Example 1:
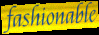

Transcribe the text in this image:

fashionable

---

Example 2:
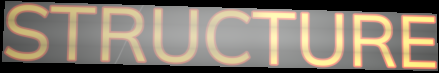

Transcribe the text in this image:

STRUCTURE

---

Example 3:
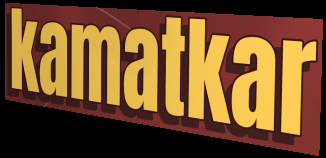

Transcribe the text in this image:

kamatkar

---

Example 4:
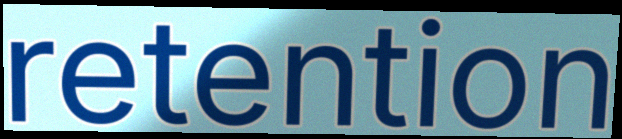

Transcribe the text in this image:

retention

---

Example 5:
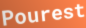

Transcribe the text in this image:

Pourest